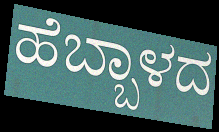
ಹೆಬ್ಬಾಳದ